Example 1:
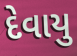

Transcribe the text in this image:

દેવાયુ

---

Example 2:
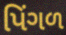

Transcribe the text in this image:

પિંગળ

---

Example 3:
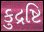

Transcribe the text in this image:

કુદ્રષ્ટિ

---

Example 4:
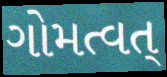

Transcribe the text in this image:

ગોમત્વત્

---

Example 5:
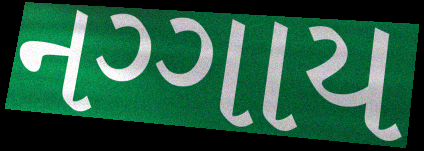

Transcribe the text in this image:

નગ્ગાય